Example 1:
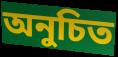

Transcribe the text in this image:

অনুচিত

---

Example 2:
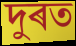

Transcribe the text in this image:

দুৰত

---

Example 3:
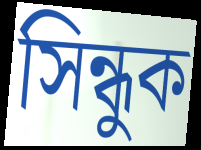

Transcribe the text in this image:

সিন্ধুক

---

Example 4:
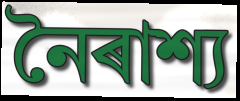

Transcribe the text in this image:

নৈৰাশ্য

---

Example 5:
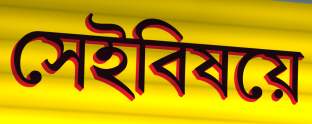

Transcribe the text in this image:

সেইবিষয়ে